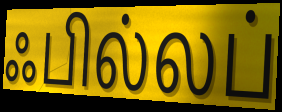
ஃபில்லப்